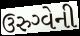
ઉરુગ્વેની